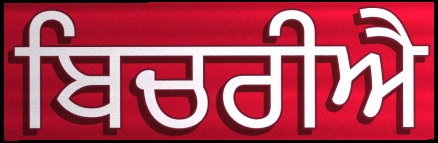
ਬਿਚਰੀਐ